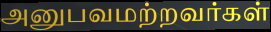
அனுபவமற்றவர்கள்